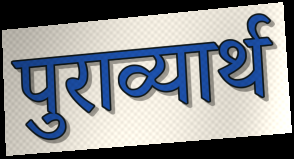
पुराव्यार्थ